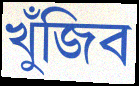
খুঁজিব